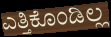
ಎತ್ತಿಕೊಂಡಿಲ್ಲ